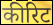
कीरिट